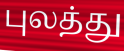
புலத்து